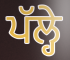
ਪੱਲ੍ਹੇ